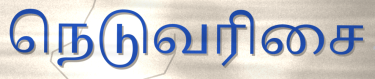
நெடுவரிசை